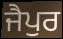
ਜੈਪੁਰ